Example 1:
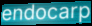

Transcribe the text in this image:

endocarp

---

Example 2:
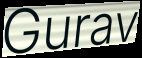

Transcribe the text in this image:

Gurav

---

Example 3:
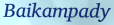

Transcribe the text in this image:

Baikampady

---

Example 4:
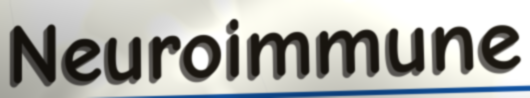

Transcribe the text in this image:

Neuroimmune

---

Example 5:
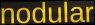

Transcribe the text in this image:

nodular